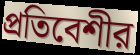
প্রতিবেশীর